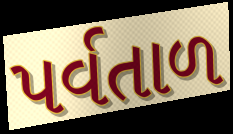
પર્વતાળ